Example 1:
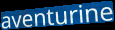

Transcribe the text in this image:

aventurine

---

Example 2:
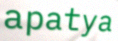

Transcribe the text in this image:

apatya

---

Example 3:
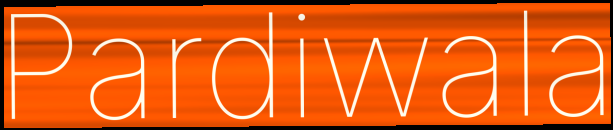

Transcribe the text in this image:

Pardiwala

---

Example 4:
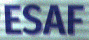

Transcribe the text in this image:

ESAF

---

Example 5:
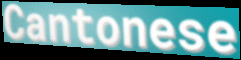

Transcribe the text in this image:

Cantonese